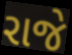
રાજે